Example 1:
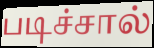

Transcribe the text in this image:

படிச்சால்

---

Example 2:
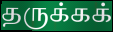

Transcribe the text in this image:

தருக்கக்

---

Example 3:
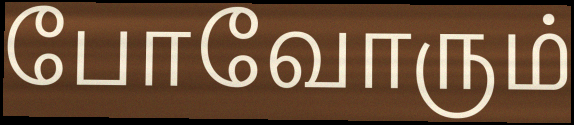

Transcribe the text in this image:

போவோரும்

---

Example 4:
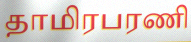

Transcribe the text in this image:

தாமிரபரணி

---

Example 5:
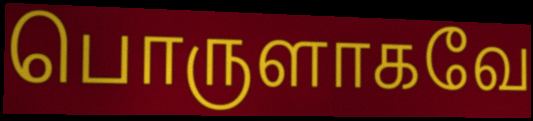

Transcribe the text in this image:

பொருளாகவே